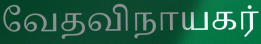
வேதவிநாயகர்